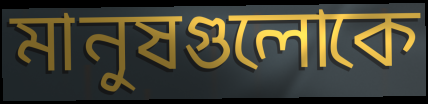
মানুষগুলোকে